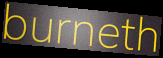
burneth